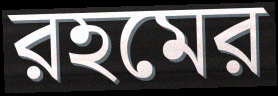
রহমের